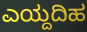
ಎಯ್ದದಿಹ